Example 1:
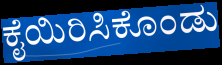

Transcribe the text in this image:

ಕೈಯಿರಿಸಿಕೊಂಡು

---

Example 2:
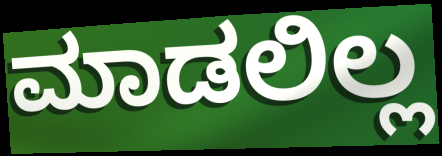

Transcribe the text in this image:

ಮಾಡಲಿಲ್ಲ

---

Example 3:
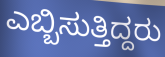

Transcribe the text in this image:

ಎಬ್ಬಿಸುತ್ತಿದ್ದರು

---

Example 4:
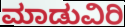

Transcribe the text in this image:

ಮಾಡುವಿರಿ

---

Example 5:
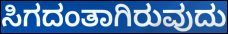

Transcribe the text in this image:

ಸಿಗದಂತಾಗಿರುವುದು